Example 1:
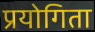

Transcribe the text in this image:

प्रयोगिता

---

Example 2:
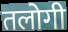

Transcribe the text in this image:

तलोगी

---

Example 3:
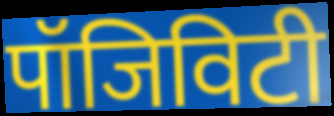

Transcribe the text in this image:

पॉजिविटी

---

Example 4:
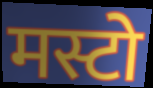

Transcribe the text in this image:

मस्टो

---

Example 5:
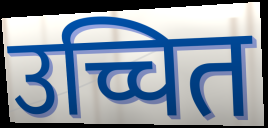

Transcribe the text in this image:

उच्चित